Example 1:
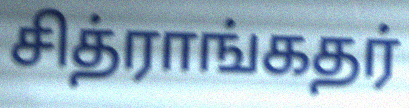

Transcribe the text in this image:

சித்ராங்கதர்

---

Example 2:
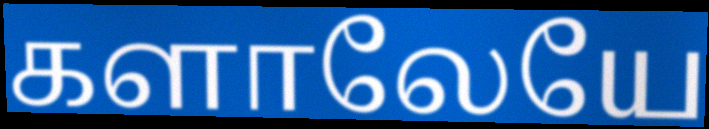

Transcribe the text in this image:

களாலேயே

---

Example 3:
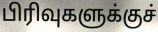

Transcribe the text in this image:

பிரிவுகளுக்குச்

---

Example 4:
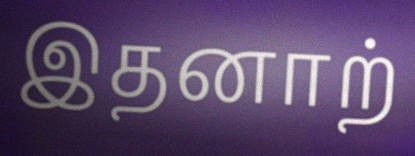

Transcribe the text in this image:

இதனாற்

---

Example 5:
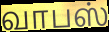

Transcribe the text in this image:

வாபஸ்